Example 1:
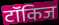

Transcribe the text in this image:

टॉकिज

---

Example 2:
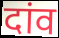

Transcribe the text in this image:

दांव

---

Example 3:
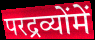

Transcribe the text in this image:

परद्रव्योंमें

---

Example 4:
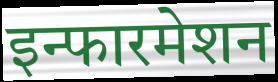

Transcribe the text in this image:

इन्फारमेशन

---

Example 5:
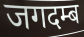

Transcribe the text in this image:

जगदम्ब